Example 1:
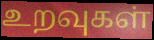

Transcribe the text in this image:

உறவுகள்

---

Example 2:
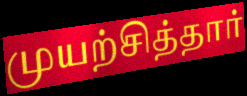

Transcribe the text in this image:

முயற்சித்தார்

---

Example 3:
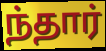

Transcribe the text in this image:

ந்தார்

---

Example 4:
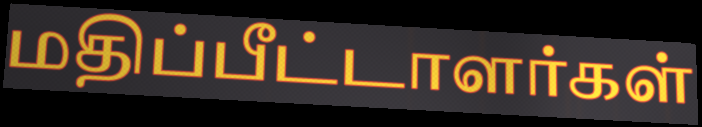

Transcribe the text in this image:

மதிப்பீட்டாளர்கள்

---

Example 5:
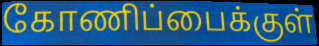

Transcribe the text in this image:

கோணிப்பைக்குள்